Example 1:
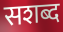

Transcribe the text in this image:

सशब्द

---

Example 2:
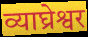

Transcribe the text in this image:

व्याघ्रेश्वर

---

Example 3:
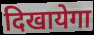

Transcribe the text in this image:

दिखायेगा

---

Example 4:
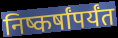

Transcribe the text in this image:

निष्कर्षांपर्यंत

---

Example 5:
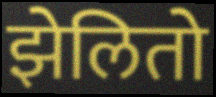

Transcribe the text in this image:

झेलितो